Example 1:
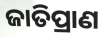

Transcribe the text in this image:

ଜାତିପ୍ରାଣ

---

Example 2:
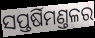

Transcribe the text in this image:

ସପ୍ତର୍ଷିମଣ୍ତଳର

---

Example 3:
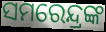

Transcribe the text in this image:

ସମରେନ୍ଦ୍ରଙ୍କ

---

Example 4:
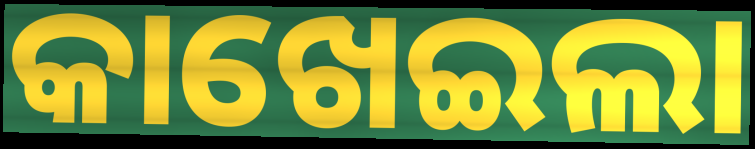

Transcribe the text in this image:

କାଖେଇଲା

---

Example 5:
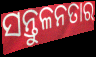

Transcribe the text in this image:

ସନ୍ତୁଳନତାର